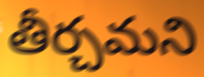
తీర్చమని